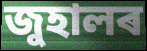
জুহালৰ